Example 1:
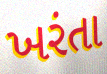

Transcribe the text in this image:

ખરંતા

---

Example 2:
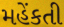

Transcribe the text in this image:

મહેંકતી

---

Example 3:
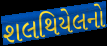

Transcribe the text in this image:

શલથિયેલનો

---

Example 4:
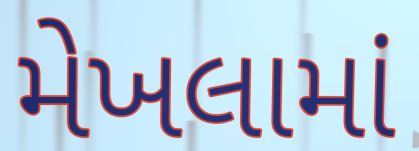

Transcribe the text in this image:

મેખલામાં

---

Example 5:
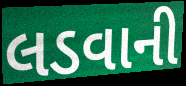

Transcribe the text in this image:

લડવાની